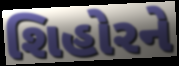
શિહોરને